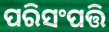
ପରିସଂପତ୍ତି